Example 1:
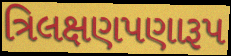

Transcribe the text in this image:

ત્રિલક્ષણપણારૂપ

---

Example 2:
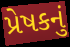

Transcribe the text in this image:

પ્રેષકનું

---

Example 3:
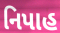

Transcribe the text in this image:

નિપાહ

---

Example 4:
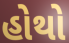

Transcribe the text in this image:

હોથો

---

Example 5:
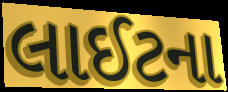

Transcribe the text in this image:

લાઈટના